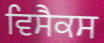
ਵਿਸੈਕਸ